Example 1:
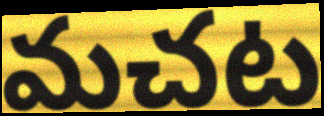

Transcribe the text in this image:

మచట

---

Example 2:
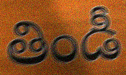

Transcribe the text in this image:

తిండీ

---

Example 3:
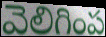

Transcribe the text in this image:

వెలిగింప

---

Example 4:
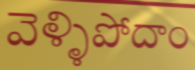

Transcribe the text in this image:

వెళ్ళిపోదాం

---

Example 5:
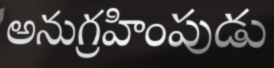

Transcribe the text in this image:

అనుగ్రహింపుడు